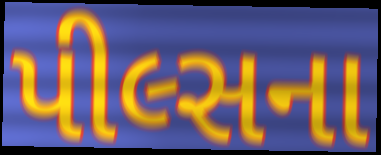
પીલ્સના